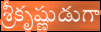
శ్రీకృష్ణుడుగా